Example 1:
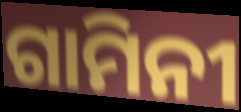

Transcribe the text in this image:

ଗାମିନୀ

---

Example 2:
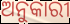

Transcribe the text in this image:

ଅନୁକାରୀ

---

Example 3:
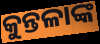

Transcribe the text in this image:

କୁନ୍ତଳାଙ୍କ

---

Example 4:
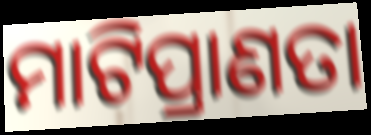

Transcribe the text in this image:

ମାଟିପ୍ରାଣତା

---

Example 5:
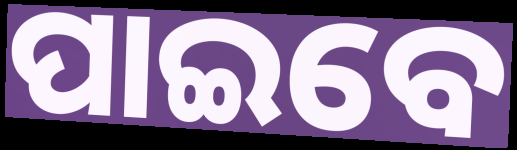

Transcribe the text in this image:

ପାଇବେ